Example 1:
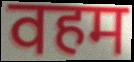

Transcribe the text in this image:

वहम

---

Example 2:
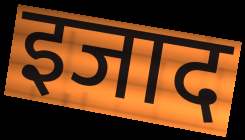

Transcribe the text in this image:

इजाद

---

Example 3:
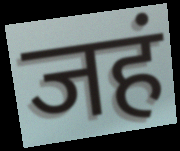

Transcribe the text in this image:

जहं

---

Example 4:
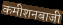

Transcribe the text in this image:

कमीशनबाजी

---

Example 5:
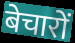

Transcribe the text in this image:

बेचारों